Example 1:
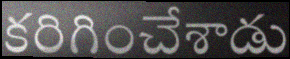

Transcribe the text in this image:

కరిగించేశాడు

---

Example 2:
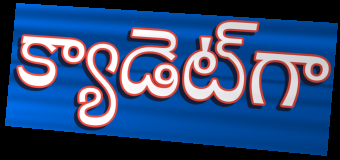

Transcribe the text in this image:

క్యాడెట్‌గా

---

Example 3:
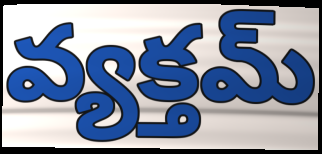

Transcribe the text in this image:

వ్యక్తమ్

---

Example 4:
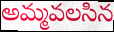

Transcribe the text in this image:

అమ్మవలసిన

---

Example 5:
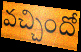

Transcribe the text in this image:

వచ్చిందో